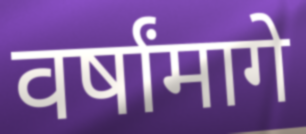
वर्षांमागे